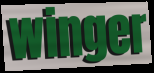
winger